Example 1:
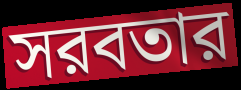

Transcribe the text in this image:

সরবতার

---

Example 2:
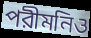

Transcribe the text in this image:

পরীমনিও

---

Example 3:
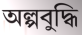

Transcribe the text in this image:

অল্পবুদ্ধি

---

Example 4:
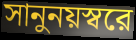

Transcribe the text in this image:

সানুনয়স্বরে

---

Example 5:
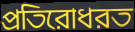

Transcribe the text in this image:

প্রতিরোধরত